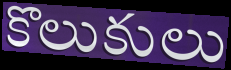
కొలుకులు